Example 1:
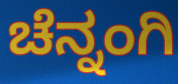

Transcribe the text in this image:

ಚೆನ್ನಂಗಿ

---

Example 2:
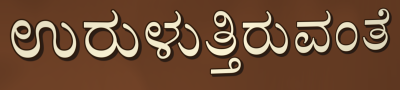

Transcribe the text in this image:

ಉರುಳುತ್ತಿರುವಂತೆ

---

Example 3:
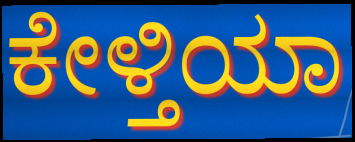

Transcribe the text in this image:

ಕೇಳ್ತಿಯಾ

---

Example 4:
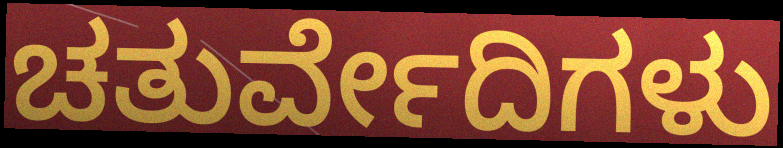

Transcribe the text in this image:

ಚತುರ್ವೇದಿಗಳು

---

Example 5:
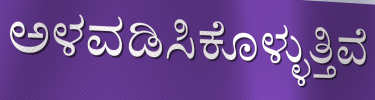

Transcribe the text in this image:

ಅಳವಡಿಸಿಕೊಳ್ಳುತ್ತಿವೆ